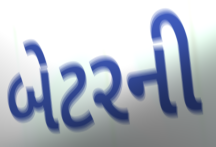
બેટરની